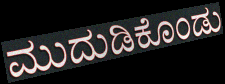
ಮುದುಡಿಕೊಂಡು